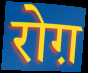
रोग़